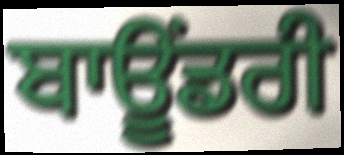
ਬਾਊਂਡਰੀ